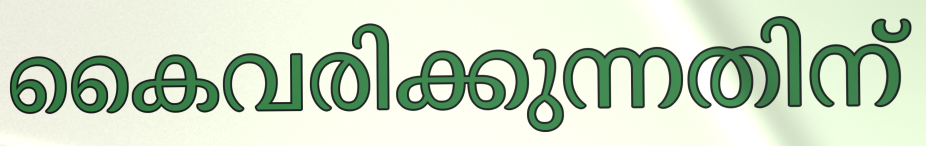
കൈവരിക്കുന്നതിന്